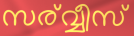
സര്വ്വീസ്